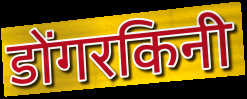
डोंगरकिनी